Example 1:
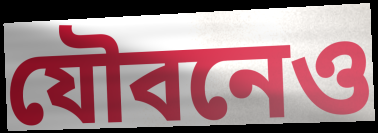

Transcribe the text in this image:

যৌবনেও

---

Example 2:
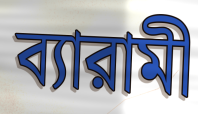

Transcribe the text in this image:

ব্যারামী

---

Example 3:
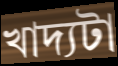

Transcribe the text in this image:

খাদ্যটা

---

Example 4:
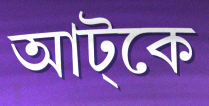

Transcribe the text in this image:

আট্কে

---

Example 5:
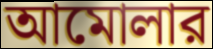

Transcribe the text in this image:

আমোলার